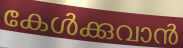
കേൾക്കുവാൻ